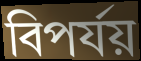
বিপর্যয়